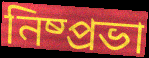
নিষ্প্রভা